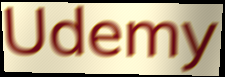
Udemy